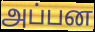
அப்பன